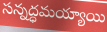
సన్నద్ధమయ్యాయి